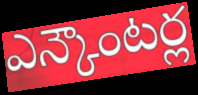
ఎన్కౌంటర్ల